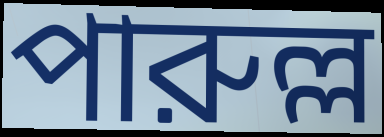
পারুল্ল